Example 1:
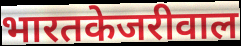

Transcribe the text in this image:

भारतकेजरीवाल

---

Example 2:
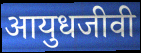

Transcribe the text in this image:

आयुधजीवी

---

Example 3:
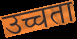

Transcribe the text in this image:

उच्चता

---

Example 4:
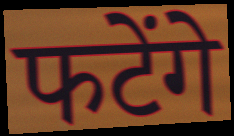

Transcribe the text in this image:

फटेंगे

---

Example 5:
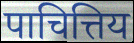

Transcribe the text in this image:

पाचित्तिय